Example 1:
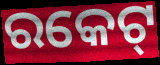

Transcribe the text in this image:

ରକେଟ୍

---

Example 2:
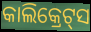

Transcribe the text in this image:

କାଲିକ୍ରେଟ୍‍ସ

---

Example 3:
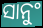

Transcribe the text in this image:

ସାନୁଂ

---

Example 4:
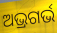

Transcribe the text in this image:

ଅଭ୍ରଗର୍ଭ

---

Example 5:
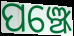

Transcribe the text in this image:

ପଞ୍ଝେ